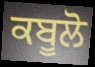
ਕਬੂਲੋ